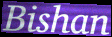
Bishan